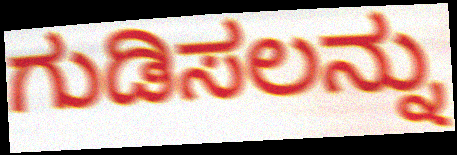
ಗುಡಿಸಲನ್ನು